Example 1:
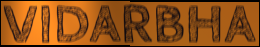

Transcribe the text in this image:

VIDARBHA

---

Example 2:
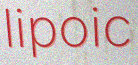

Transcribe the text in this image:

lipoic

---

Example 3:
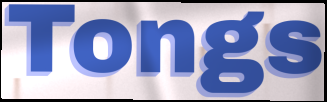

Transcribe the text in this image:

Tongs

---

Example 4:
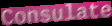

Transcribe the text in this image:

Consulate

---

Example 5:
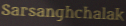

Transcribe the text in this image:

Sarsanghchalak